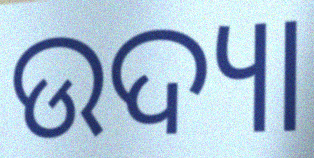
ଉଦ୍ୟା